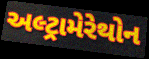
અલ્ટ્રામેરેથોન